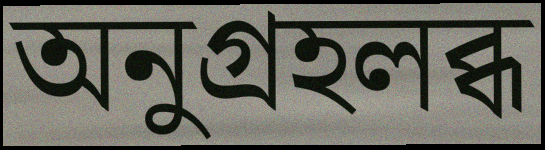
অনুগ্রহলব্ধ